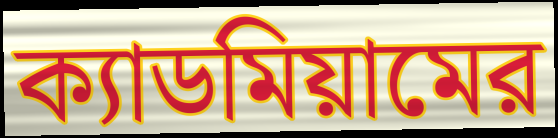
ক্যাডমিয়ামের